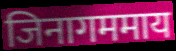
जिनागममाय